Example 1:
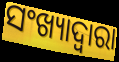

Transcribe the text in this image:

ସଂଖ୍ୟାଦ୍ଵାରା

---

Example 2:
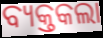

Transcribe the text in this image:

ବ୍ୟକ୍ତକଲା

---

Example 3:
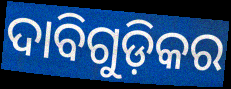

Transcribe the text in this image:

ଦାବିଗୁଡ଼ିକର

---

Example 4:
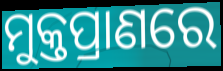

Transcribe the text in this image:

ମୁକ୍ତପ୍ରାଣରେ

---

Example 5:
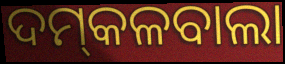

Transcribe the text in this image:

ଦମ୍‍କଳବାଲା